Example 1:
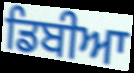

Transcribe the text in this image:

ਡਿਬੀਆ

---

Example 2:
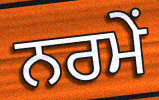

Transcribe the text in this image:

ਨਰਮੇਂ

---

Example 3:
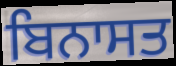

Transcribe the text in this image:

ਬਿਨਾਸਤ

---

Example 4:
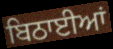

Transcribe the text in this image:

ਬਿਠਾਈਆਂ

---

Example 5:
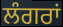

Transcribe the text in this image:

ਲੰਗਰਾਂ